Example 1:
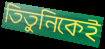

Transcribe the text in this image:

তিতুনিকেই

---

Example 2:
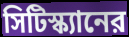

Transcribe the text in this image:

সিটিস্ক্যানের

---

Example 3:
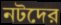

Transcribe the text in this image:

নটদের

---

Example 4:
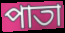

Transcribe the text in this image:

পাতা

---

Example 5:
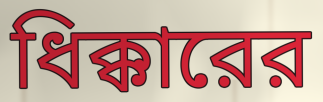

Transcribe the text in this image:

ধিক্কারের